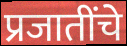
प्रजातींचे